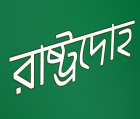
রাষ্ট্রদোহ